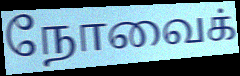
நோவைக்